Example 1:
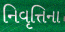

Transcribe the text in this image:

નિવૃત્તિના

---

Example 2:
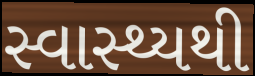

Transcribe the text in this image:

સ્વાસ્થ્યથી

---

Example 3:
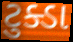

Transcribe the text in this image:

ટુક્ડા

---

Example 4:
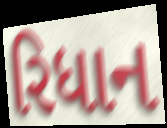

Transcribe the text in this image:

રિધાન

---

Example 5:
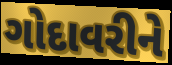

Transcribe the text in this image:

ગોદાવરીને